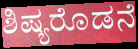
ಶಿಷ್ಯರೊಡನೆ